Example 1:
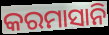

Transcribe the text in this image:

କରମାସାନି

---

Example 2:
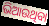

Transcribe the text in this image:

ଭିଆଉଥିବା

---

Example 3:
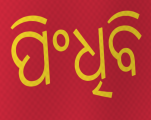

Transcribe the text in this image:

ପିଂଧିବି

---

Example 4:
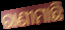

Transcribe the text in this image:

ରାଣୀମାଛି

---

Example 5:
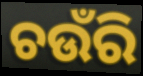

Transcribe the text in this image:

ଚଉଁରି